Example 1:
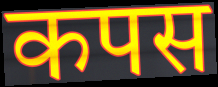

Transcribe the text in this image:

कपस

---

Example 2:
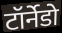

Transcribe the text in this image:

टॉर्नेडो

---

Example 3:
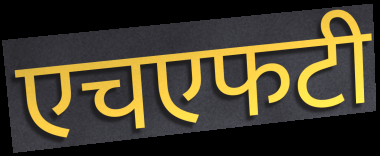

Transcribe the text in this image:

एचएफटी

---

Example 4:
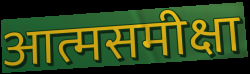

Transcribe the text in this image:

आत्मसमीक्षा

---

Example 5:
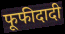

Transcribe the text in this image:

फूफीदादी